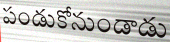
పండుకోనుండాడు